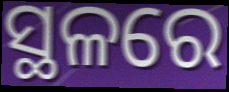
ସ୍ଥଳରେ